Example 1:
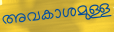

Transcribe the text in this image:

അവകാശമുള്ള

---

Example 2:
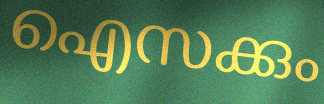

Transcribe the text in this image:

ഐസക്കും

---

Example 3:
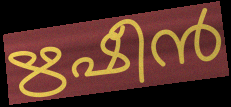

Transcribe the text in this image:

ഋഷീൻ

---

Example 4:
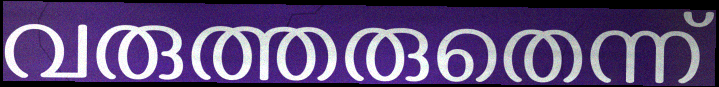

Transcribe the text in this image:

വരുത്തരുതെന്ന്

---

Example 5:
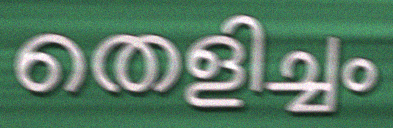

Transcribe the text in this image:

തെളിച്ചം